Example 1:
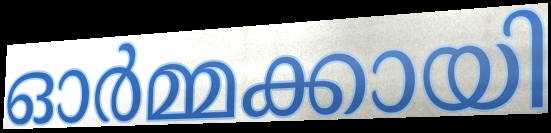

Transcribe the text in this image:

ഓർമ്മക്കായി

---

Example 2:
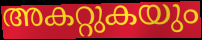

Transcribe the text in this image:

അകറ്റുകയും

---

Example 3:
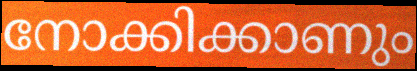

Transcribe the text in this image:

നോക്കിക്കാണും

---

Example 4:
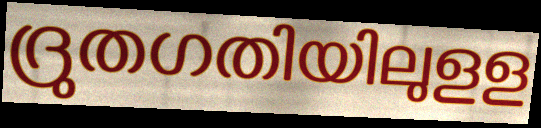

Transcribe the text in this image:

ദ്രുതഗതിയിലുളള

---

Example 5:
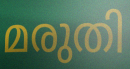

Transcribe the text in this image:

മരുതി